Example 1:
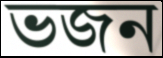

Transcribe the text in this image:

ভজন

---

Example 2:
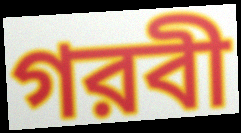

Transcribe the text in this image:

গরবী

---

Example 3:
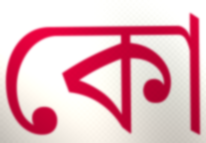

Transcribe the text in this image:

কো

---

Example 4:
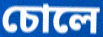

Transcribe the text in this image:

চোলে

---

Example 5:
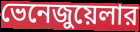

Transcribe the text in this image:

ভেনেজুয়েলার